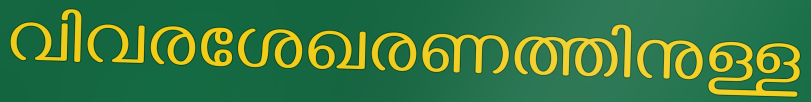
വിവരശേഖരണത്തിനുള്ള